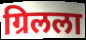
ग्रिलला